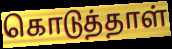
கொடுத்தாள்